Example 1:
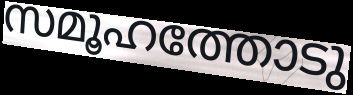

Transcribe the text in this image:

സമൂഹത്തോടു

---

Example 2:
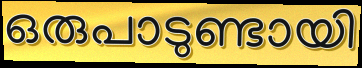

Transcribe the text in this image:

ഒരുപാടുണ്ടായി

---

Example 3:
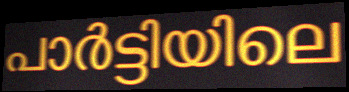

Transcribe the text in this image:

പാർട്ടിയിലെ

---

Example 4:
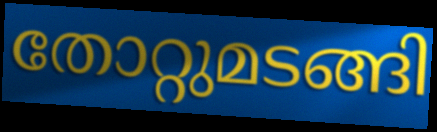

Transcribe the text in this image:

തോറ്റുമടങ്ങി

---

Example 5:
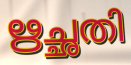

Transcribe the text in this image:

ഋച്ഛതി